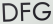
DFG